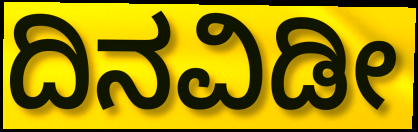
ದಿನವಿಡೀ